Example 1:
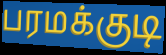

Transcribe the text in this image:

பரமக்குடி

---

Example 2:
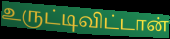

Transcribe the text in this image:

உருட்டிவிட்டான்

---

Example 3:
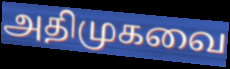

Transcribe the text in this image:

அதிமுகவை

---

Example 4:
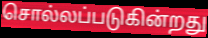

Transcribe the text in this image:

சொல்லப்படுகின்றது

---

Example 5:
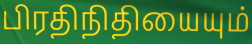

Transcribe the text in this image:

பிரதிநிதியையும்